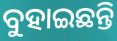
ବୁହାଇଛନ୍ତି